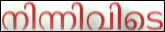
നിന്നിവിടെ